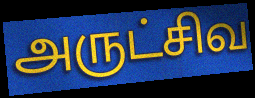
அருட்சிவ